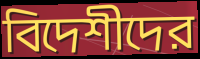
বিদেশীদের